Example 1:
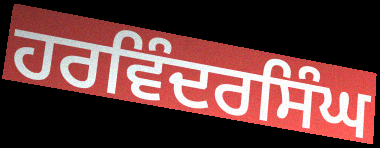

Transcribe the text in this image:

ਹਰਵਿੰਦਰਸਿੰਘ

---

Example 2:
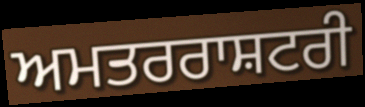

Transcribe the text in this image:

ਅਮਤਰਰਾਸ਼ਟਰੀ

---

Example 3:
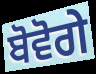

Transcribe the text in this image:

ਬੋਵੋਗੇ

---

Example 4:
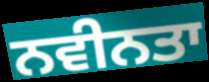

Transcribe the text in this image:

ਨਵੀਨਤਾ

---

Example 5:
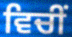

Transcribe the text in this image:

ਵਿਚੀਂ